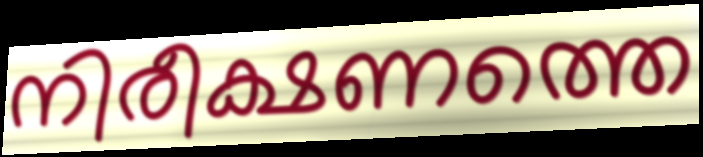
നിരീക്ഷണത്തെ